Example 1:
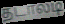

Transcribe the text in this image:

தடாலடி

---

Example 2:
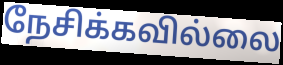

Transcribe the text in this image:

நேசிக்கவில்லை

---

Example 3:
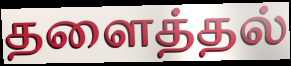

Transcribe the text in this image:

தளைத்தல்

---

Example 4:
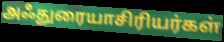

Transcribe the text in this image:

அஃதுரையாசிரியர்கள்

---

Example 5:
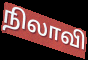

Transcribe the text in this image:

நிலாவி